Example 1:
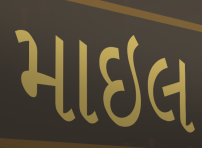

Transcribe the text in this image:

માઇલ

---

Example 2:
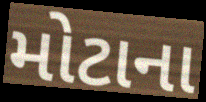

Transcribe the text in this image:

મોટાના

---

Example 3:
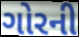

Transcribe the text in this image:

ગોરની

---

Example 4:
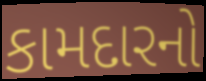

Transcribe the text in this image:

કામદારનો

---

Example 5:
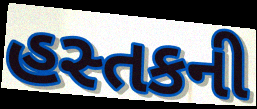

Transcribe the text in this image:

હસ્તકની